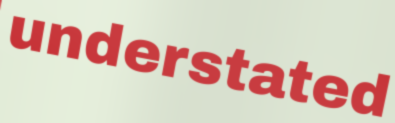
understated